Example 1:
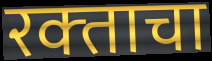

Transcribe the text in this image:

रक्‍ताचा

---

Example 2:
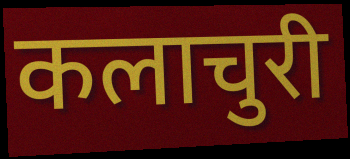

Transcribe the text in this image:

कलाचुरी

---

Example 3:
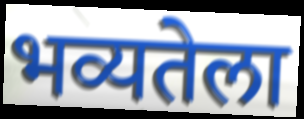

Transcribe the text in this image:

भव्यतेला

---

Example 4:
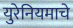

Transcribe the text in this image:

युरेनियमाचे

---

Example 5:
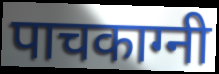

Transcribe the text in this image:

पाचकाग्नी